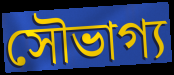
সৌভাগ্য